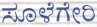
ಸೂಳೆಗೇರಿ